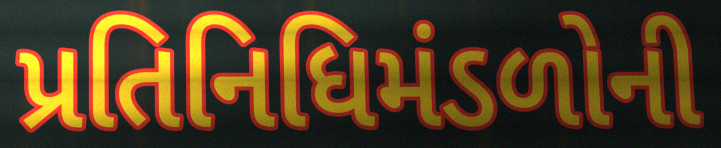
પ્રતિનિધિમંડળોની